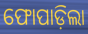
ଫୋପାଡ଼ିଲା